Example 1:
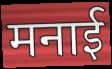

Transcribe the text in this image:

मनाई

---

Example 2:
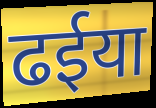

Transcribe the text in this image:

ढईया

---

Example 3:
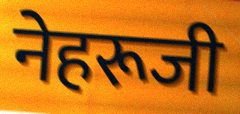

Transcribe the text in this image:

नेहरूजी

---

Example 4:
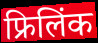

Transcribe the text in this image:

फ्रिलिंक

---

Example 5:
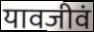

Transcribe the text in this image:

यावजीवं